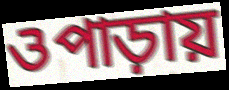
ওপাড়ায়